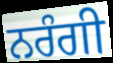
ਨਰੰਗੀ